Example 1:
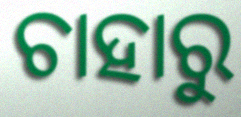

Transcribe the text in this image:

ଚାହାରୁ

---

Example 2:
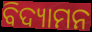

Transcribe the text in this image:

ବିଦ୍ୟାମନ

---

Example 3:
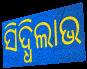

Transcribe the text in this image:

ସିଦ୍ଧିଲାଭ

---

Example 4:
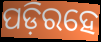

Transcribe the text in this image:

ପଡ଼ିରହେ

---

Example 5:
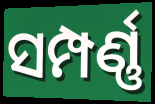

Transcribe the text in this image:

ସମ୍ପର୍ଣ୍ଣ